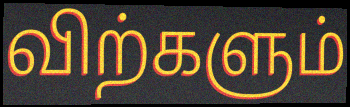
விற்களும்